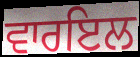
ਵਾਰਇਲ